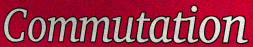
Commutation